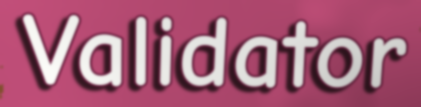
Validator